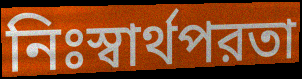
নিঃস্বার্থপরতা